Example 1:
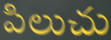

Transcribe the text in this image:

పిలుచు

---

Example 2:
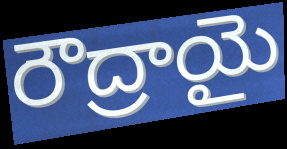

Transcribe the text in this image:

రౌద్రాయై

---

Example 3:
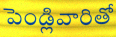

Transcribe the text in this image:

పెండ్లివారితో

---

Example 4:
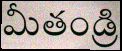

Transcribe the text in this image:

మీతండ్రి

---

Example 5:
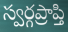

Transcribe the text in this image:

స్వర్గప్రాప్తి